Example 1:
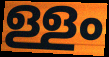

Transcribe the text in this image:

ള്ളം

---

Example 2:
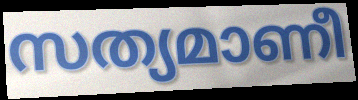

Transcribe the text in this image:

സത്യമാണീ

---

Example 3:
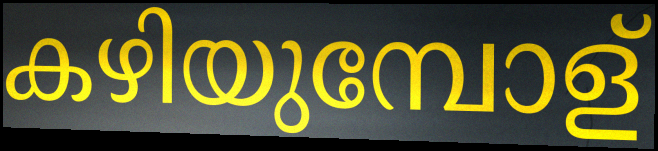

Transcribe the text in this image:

കഴിയുമ്പോള്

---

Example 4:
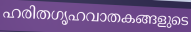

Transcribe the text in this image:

ഹരിതഗൃഹവാതകങ്ങളുടെ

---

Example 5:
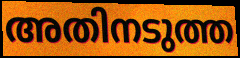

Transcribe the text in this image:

അതിനടുത്ത